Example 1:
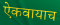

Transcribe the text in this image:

ऐकवायाच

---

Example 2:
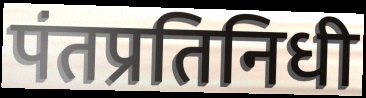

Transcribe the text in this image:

पंतप्रतिनिधी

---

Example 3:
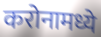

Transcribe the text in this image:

करोनामध्ये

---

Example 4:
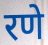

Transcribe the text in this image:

रणे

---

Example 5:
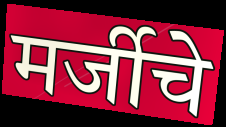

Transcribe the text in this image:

मर्जीचे